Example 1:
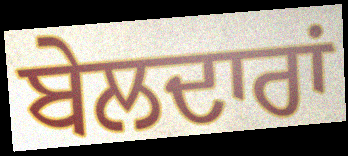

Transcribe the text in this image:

ਬੇਲਦਾਰਾਂ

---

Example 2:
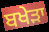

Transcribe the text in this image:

ਬਖੇੜਾ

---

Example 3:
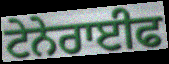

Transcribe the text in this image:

ਟੇਨੇਰਾਈਫ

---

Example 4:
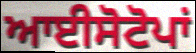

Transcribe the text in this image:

ਆਈਸੋਟੋਪਾਂ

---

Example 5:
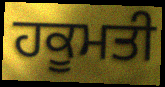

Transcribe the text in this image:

ਹਕੂਮਤੀ